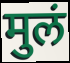
मुलं